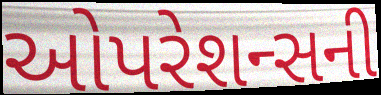
ઓપરેશન્સની